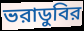
ভরাডুবির